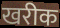
खरीक